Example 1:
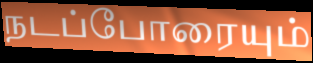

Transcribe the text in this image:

நடப்போரையும்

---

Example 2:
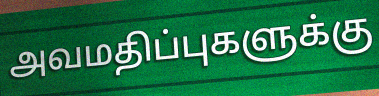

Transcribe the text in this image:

அவமதிப்புகளுக்கு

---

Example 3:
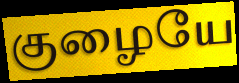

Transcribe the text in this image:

குழையே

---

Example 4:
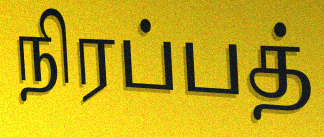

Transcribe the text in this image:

நிரப்பத்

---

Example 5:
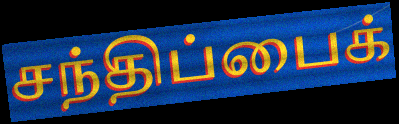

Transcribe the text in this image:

சந்திப்பைக்